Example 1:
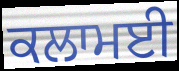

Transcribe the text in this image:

ਕਲਾਮਈ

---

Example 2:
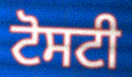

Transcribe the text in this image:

ਟੋਸਟੀ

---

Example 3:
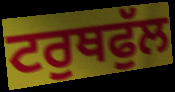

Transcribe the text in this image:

ਟਰੁਥਫੁੱਲ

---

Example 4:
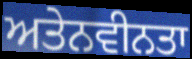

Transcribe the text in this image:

ਅਤੇਨਵੀਨਤਾ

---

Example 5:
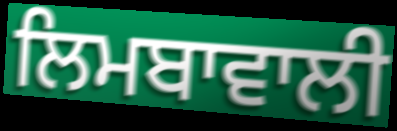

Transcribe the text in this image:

ਲਿਮਬਾਵਾਲੀ